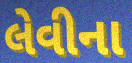
લેવીના